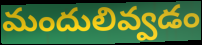
మందులివ్వడం